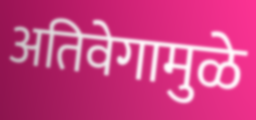
अतिवेगामुळे